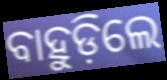
ବାହୁଡ଼ିଲେ